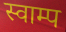
स्वाम्प